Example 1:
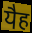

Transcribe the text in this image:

यैह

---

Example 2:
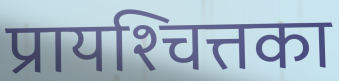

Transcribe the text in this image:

प्रायश्चित्तका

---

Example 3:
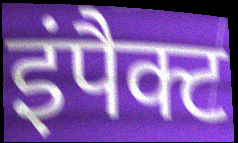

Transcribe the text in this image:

इंपैक्ट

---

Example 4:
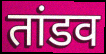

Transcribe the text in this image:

तांडव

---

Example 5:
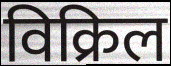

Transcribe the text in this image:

विक्रिल